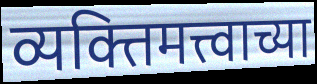
व्यक्तिमत्त्वाच्या